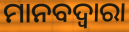
ମାନବଦ୍ୱାରା